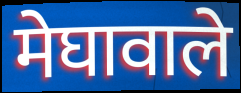
मेघावाले